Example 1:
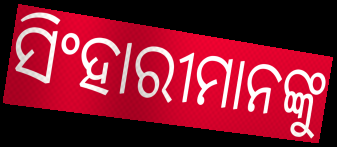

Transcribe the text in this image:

ସିଂହାରୀମାନଙ୍କୁ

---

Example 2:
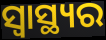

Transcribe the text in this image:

ସ୍ବାସ୍ଥ୍ୟର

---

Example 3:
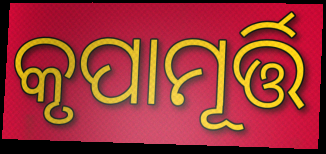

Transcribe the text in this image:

କୃପାମୂର୍ତ୍ତି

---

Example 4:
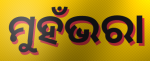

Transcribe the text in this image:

ମୁହଁଭରା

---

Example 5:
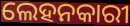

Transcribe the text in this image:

ଲେହନକାରୀ